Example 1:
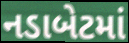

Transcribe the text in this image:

નડાબેટમાં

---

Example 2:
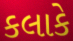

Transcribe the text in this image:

કલાકે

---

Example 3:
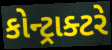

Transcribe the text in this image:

કોન્ટ્રાક્ટરે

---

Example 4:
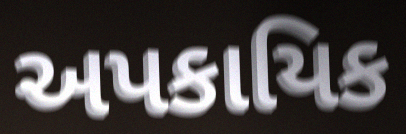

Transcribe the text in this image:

અપકાયિક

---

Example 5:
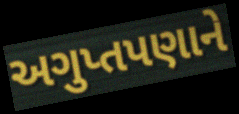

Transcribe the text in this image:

અગુપ્તપણાને